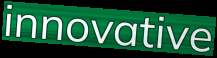
innovative